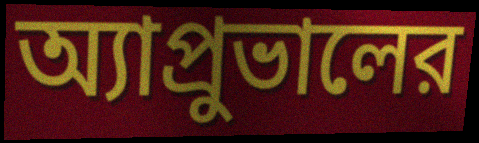
অ্যাপ্রুভালের